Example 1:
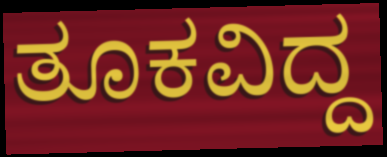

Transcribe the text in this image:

ತೂಕವಿದ್ದ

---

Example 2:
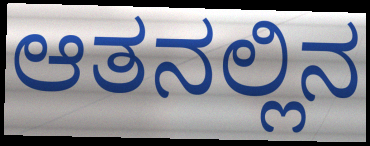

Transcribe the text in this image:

ಆತನಲ್ಲಿನ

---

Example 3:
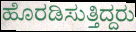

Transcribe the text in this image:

ಹೊರಡಿಸುತ್ತಿದ್ದರು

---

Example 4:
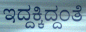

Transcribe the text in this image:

ಇದ್ದಕ್ಕಿದ್ದಂತೆ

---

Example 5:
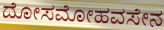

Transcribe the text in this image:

ದೋಸಮೋಹವಸೇನ